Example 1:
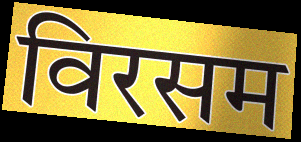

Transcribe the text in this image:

विरसम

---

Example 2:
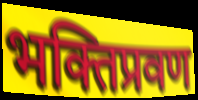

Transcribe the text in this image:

भक्तिप्रवण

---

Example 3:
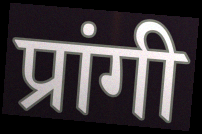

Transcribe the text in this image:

प्रांगी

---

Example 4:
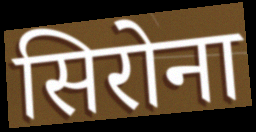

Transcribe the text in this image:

सिरोना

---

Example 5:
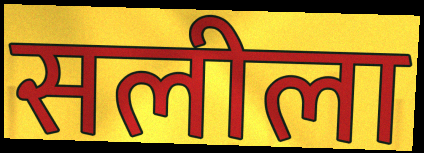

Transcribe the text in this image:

सलीला